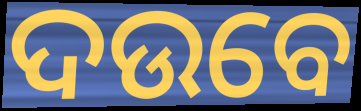
ଦଉବେ